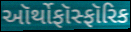
ઑર્થોફૉસ્ફૉરિક